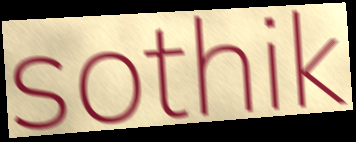
sothik